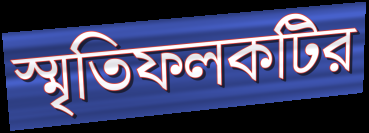
স্মৃতিফলকটির